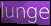
lunge